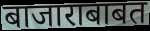
बाजाराबाबत